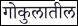
गोकुलातील